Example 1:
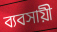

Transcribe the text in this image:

ব্যবসায়ী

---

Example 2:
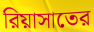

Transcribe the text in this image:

রিয়াসাতের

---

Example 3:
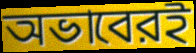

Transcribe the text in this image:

অভাবেরই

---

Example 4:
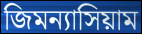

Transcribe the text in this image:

জিমন্যাসিয়াম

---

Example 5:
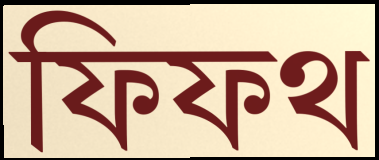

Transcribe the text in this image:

ফিফথ